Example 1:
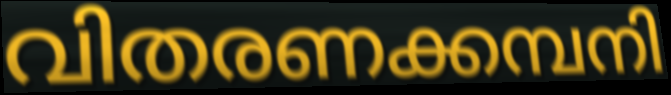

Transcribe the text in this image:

വിതരണക്കമ്പനി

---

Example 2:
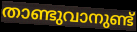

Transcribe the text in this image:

താണ്ടുവാനുണ്ട്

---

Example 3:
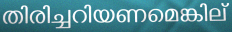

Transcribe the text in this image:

തിരിച്ചറിയണമെങ്കില്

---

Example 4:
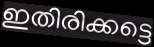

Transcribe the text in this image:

ഇതിരിക്കട്ടെ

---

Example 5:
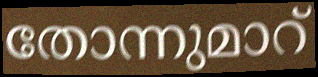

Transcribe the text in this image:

തോന്നുമാറ്